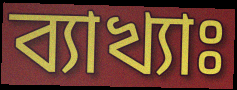
ব্যাখ্যাঃ